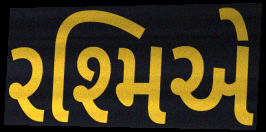
રશ્મિએ